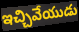
ఇచ్చివేయుడు